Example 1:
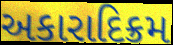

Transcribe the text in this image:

અકારાદિક્રમ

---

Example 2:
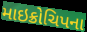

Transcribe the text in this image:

માઇક્રોચિપના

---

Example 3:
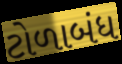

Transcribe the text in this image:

ટોળાબંધ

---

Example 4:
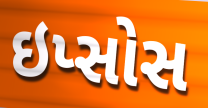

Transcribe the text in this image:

ઇપ્સોસ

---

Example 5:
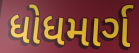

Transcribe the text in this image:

ધોધમાર્ગ